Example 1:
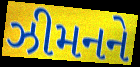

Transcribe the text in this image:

ઝીમનને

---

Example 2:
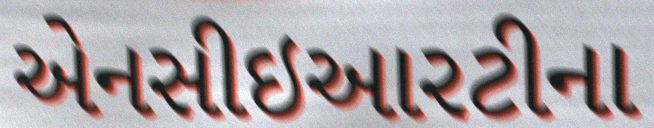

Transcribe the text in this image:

એનસીઇઆરટીના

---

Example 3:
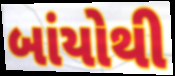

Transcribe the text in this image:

બાંયોથી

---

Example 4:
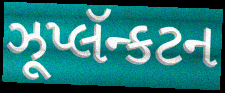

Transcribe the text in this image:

ઝૂપ્લૅન્કટન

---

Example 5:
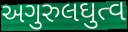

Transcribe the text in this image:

અગુરુલઘુત્વ